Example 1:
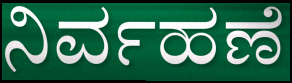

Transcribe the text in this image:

ನಿರ್ವಹಣೆ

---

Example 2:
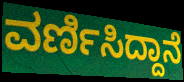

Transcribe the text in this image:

ವರ್ಣಿಸಿದ್ದಾನೆ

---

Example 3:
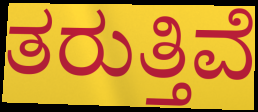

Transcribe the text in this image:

ತರುತ್ತಿವೆ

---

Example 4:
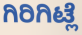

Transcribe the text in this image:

ಗಿರಿಗಿಟ್ಲೆ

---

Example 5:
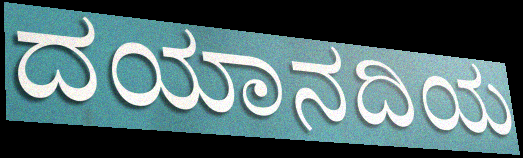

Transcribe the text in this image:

ದಯಾನದಿಯ